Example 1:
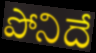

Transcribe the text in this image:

పోనిదే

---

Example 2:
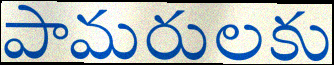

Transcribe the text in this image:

పామరులకు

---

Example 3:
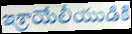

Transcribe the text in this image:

ఇశ్రాయేలీయుడికి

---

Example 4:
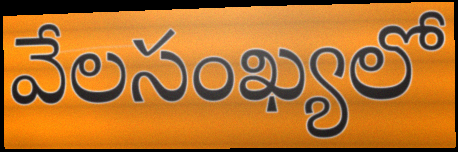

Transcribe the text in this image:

వేలసంఖ్యలో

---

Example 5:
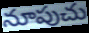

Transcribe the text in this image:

నూపుచు